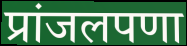
प्रांजलपणा